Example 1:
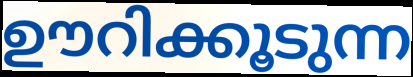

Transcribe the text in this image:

ഊറിക്കൂടുന്ന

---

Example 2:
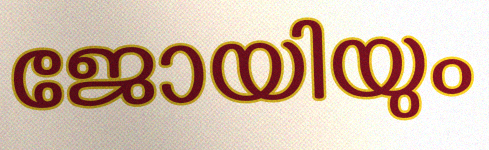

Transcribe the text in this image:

ജോയിയും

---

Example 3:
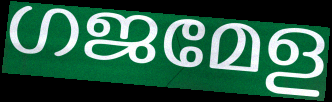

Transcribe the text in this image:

ഗജമേള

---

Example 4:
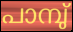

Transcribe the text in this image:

പാമ്പു്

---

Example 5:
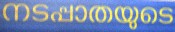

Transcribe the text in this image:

നടപ്പാതയുടെ